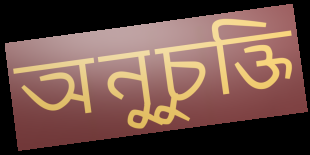
অনুচুক্তি